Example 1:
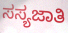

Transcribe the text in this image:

ಸಸ್ಯಜಾತಿ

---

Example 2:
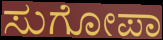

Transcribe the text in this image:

ಸುಗೋಪಾ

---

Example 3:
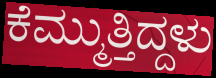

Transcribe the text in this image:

ಕೆಮ್ಮುತ್ತಿದ್ದಳು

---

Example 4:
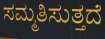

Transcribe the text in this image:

ಸಮ್ಮತಿಸುತ್ತದೆ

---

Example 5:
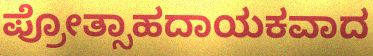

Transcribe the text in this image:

ಪ್ರೋತ್ಸಾಹದಾಯಕವಾದ